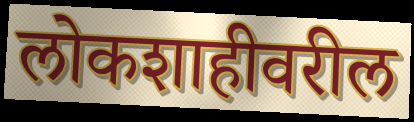
लोकशाहीवरील